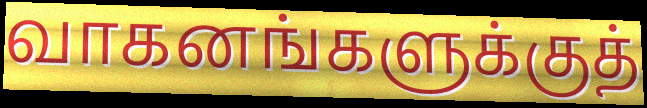
வாகனங்களுக்குத்